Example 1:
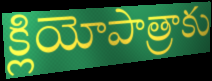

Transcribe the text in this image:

క్లియోపాత్రాకు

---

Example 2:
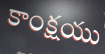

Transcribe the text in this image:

కాంక్షయు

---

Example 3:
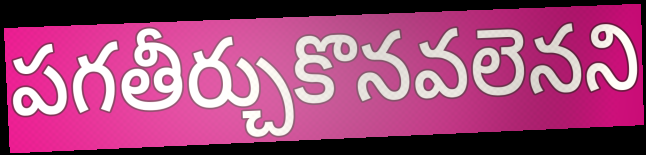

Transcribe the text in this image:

పగతీర్చుకొనవలెనని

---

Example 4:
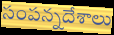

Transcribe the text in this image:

సంపన్నదేశాలు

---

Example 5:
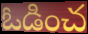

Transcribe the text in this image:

ఓడించ